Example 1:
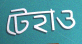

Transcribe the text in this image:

টেহাও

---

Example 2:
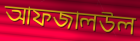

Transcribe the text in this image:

আফজালউল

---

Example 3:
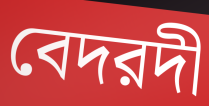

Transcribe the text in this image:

বেদরদী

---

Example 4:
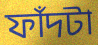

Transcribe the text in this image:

ফাঁদটা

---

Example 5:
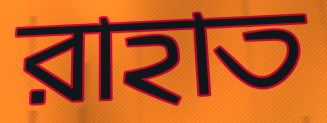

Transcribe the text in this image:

রাহাত